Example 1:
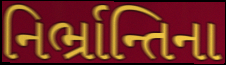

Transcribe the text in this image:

નિર્ભ્રાન્તિના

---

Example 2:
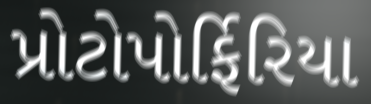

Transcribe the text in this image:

પ્રોટોપોર્ફિરિયા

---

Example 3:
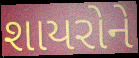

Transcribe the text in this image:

શાયરોને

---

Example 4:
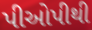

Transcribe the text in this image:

પીઓપીથી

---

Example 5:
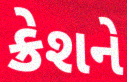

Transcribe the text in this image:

ક્રેશને